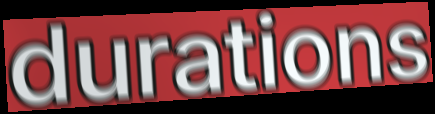
durations